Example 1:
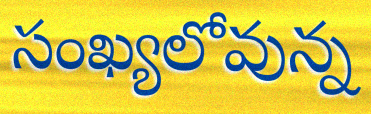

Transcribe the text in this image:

సంఖ్యలోవున్న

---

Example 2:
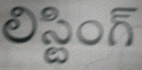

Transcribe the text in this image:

లిస్టింగ్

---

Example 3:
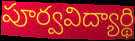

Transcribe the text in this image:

పూర్వవిద్యార్థి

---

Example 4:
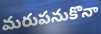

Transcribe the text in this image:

మరుపనుకొనా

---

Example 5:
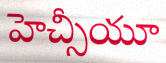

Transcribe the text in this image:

హెచ్సీయూ